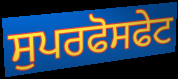
ਸੁਪਰਫੋਸਫੇਟ